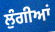
ਲੁੰਗੀਆਂ